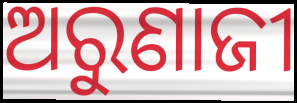
ଅରୁଣାଜୀ